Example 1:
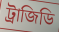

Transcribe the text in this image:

ট্রাজিডি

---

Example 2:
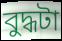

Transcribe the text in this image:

বুদ্ধটা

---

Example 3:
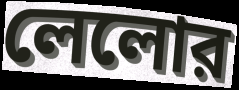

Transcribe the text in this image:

লেলোর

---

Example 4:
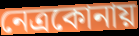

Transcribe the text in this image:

নেত্রকোনায়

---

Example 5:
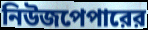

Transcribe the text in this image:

নিউজপেপারের